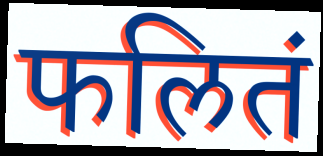
फलितं